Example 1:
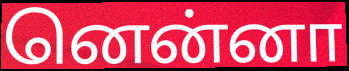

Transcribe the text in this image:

னென்னா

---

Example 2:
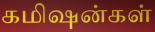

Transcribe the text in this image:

கமிஷன்கள்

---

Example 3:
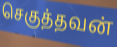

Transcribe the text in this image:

செகுத்தவன்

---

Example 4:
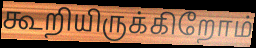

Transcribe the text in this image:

கூறியிருக்கிறோம்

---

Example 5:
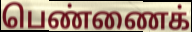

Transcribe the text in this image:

பெண்ணைக்